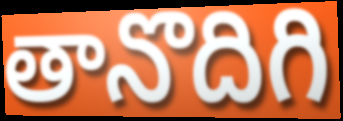
తానొదిగి